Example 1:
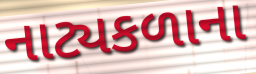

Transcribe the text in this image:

નાટ્યકળાના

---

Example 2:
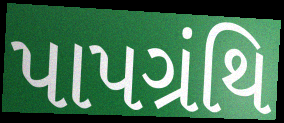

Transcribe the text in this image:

પાપગ્રંથિ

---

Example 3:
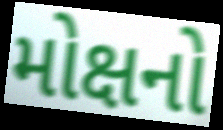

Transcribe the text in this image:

મોક્ષનો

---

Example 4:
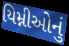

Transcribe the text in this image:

યિમ્નીઓનું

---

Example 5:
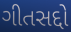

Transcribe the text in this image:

ગીતસદ્દો